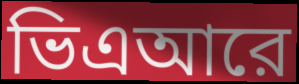
ভিএআরে